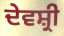
ਦੇਵਸ਼੍ਰੀ